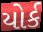
યોર્ક